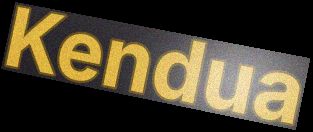
Kendua